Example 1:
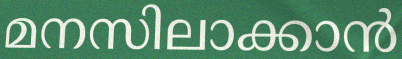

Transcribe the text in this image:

മനസിലാക്കാൻ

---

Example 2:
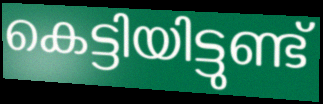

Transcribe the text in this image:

കെട്ടിയിട്ടുണ്ട്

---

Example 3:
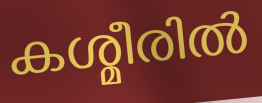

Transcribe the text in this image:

കശ്മീരിൽ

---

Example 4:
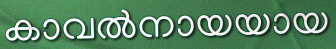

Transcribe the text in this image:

കാവൽനായയായ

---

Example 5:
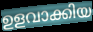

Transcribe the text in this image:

ഉളവാക്കിയ